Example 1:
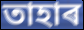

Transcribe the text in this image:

তাহাৰ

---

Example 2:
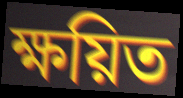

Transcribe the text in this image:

ক্ষয়িত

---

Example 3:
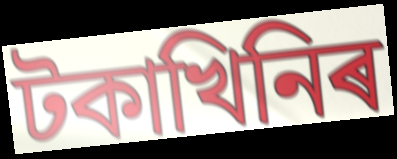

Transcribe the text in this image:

টকাখিনিৰ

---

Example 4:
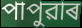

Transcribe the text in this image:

পাপুৱাৰ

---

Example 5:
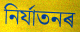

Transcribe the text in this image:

নিৰ্যাতনৰ